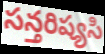
సన్తరిష్యసి